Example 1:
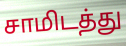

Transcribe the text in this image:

சாமிடத்து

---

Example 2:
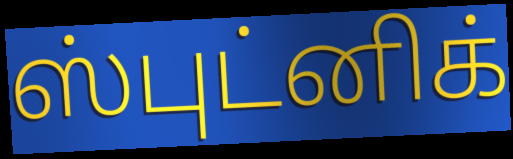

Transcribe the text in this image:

ஸ்புட்னிக்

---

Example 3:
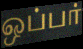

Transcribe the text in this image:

ஒப்பர்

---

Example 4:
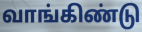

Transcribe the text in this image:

வாங்கிண்டு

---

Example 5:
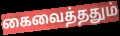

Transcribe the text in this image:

கைவைத்ததும்